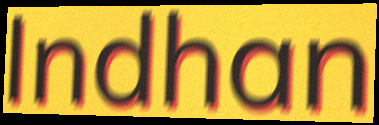
Indhan